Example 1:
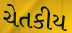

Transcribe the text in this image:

ચેતકીય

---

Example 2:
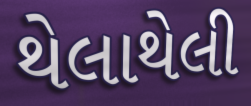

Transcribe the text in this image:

થેલાથેલી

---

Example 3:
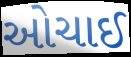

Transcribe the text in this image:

ઓચાઈ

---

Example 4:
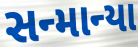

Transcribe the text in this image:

સન્માન્યા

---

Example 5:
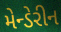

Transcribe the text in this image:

મેન્ડેરીન